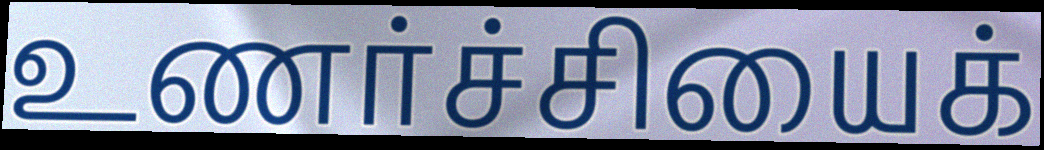
உணர்ச்சியைக்